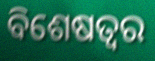
ବିଶେଷତ୍ବର